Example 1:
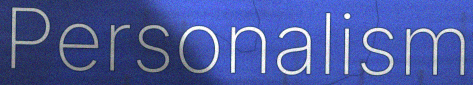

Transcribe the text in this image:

Personalism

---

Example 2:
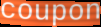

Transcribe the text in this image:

coupon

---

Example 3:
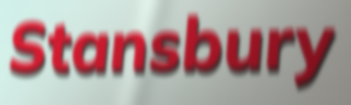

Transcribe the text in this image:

Stansbury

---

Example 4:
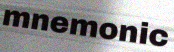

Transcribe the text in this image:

mnemonic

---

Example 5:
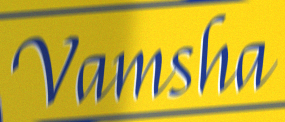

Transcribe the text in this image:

Vamsha